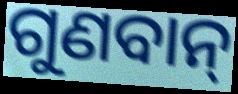
ଗୁଣବାନ୍